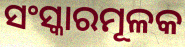
ସଂସ୍କାରମୂଳକ